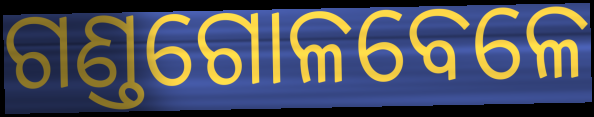
ଗଣ୍ଡଗୋଳବେଳେ